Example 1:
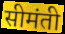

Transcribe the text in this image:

सीमंती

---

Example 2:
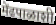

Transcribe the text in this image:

मेंढपाळाशी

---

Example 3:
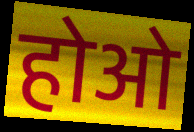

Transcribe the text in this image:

होओ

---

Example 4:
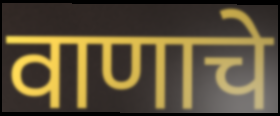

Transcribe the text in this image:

वाणाचे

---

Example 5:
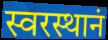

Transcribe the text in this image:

स्वरस्थानं